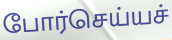
போர்செய்யச்